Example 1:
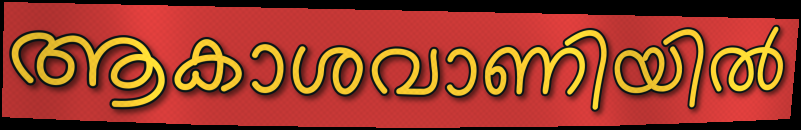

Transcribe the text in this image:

ആകാശവാണിയിൽ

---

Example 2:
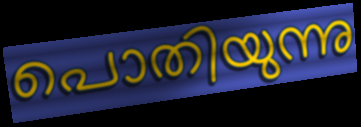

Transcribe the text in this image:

പൊതിയുന്നു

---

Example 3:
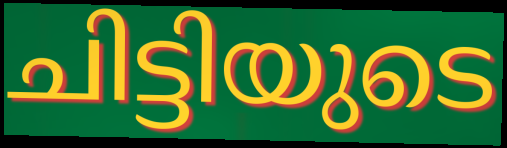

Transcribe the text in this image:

ചിട്ടിയുടെ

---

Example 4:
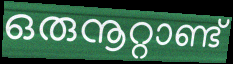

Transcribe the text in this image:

ഒരുനൂറ്റാണ്ട്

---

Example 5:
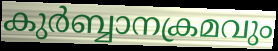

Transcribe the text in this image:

കുർബ്ബാനക്രമവും